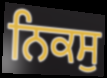
ਨਿਕਸੁ